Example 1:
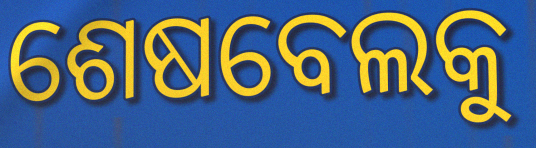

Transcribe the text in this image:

ଶେଷବେଲକୁ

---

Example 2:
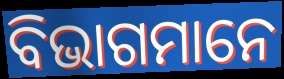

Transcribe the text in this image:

ବିଭାଗମାନେ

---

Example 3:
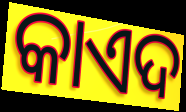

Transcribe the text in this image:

କାଏଦ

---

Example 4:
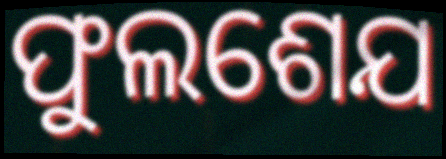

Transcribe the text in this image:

ଫୁଲଶେଯ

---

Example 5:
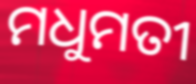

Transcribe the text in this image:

ମଧୁମତୀ